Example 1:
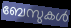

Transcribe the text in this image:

ബേസുകൾ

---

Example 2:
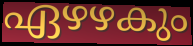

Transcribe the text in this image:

ഏഴഴകും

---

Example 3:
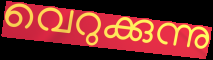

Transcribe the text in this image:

വെറുക്കുന്നു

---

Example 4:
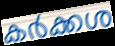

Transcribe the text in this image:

കർക്കശ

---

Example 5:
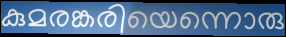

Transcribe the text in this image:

കുമരങ്കരിയെന്നൊരു